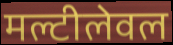
मल्टीलेवल